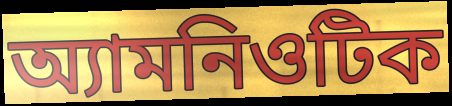
অ্যামনিওটিক